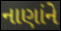
નાણાંને